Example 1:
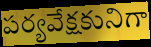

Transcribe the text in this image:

పర్యవేక్షకునిగా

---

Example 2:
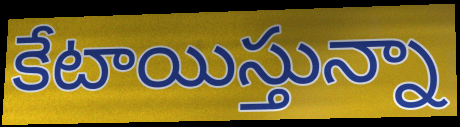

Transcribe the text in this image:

కేటాయిస్తున్నా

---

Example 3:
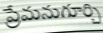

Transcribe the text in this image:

ప్రేమనుగూర్చి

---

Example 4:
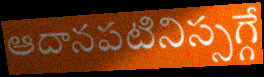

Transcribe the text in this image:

ఆదానపటినిస్సగ్గే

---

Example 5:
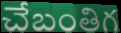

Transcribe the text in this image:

చేబంతిగ